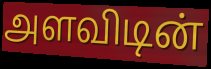
அளவிடின்